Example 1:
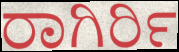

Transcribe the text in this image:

ರಾಗಿರ್ರಿ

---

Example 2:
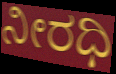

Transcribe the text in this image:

ನೀರಧಿ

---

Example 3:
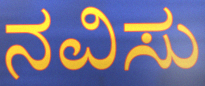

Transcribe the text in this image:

ನವಿಸು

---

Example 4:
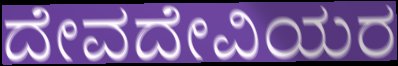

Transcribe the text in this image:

ದೇವದೇವಿಯರ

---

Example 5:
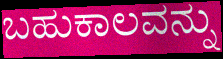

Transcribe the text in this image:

ಬಹುಕಾಲವನ್ನು